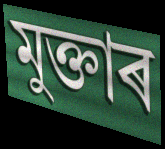
মুক্তাৰ